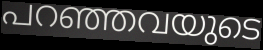
പറഞ്ഞവയുടെ